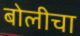
बोलीचा